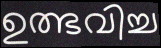
ഉത്ഭവിച്ച